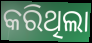
କରିଥିଲା